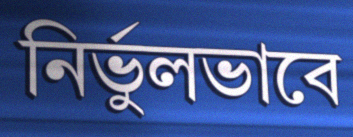
নির্ভুলভাবে